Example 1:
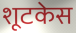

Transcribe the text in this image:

शूटकेस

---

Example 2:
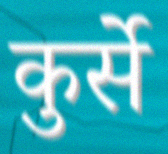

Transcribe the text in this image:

कुर्से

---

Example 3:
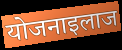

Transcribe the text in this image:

योजनाइलाज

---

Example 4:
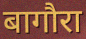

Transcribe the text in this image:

बागौरा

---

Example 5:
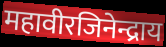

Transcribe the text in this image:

महावीरजिनेन्द्राय